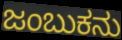
ಜಂಬುಕನು